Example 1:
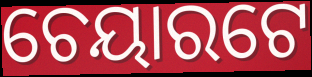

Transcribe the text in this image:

ଚେୟାରଟେ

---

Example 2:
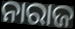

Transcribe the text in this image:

ନାରାଜ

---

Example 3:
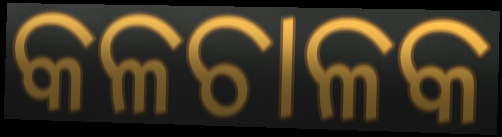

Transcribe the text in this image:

କଳଚାଳକ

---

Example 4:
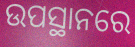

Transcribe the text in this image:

ଉପସ୍ଥାନରେ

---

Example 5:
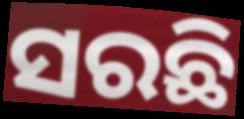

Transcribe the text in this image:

ସରଛି